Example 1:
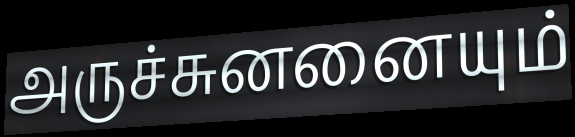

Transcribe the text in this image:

அருச்சுனனையும்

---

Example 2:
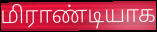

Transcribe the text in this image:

மிராண்டியாக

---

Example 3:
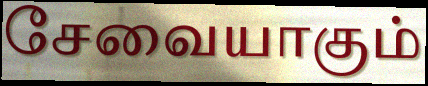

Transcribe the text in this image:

சேவையாகும்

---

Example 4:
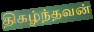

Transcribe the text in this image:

திகழ்ந்தவன்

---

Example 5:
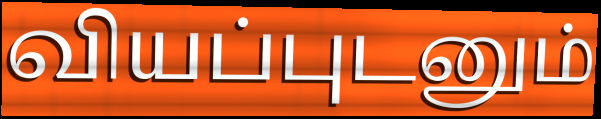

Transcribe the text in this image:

வியப்புடனும்